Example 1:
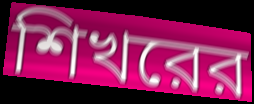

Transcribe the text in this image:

শিখরের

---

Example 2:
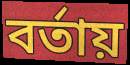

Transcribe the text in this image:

বর্তায়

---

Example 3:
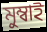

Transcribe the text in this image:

মুম্বাই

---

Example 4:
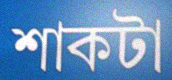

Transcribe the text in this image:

শাকটা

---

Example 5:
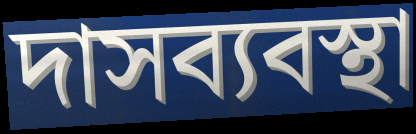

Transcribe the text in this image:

দাসব্যবস্থা